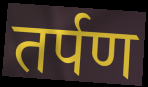
तर्पण